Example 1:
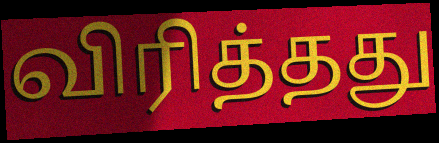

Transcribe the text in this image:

விரித்தது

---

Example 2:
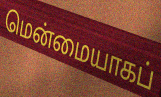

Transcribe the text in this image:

மென்மையாகப்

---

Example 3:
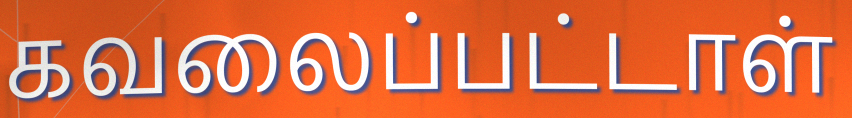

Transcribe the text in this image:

கவலைப்பட்டாள்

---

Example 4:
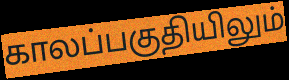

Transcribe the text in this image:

காலப்பகுதியிலும்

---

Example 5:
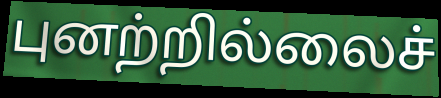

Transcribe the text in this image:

புனற்றில்லைச்